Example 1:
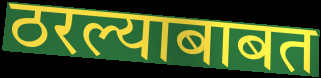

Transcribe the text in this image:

ठरल्याबाबत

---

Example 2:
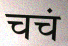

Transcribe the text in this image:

चचं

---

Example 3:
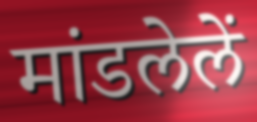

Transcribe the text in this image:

मांडलेलें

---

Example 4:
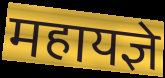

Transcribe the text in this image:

महायज्ञे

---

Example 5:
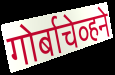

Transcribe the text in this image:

गोर्बाचेव्हने